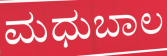
ಮಧುಬಾಲ